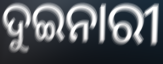
ଦୁଇନାରୀ